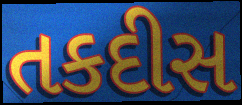
તકદીસ